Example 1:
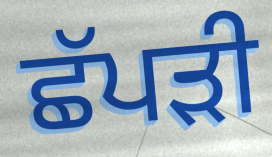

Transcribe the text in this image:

ਛੱਪੜੀ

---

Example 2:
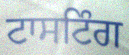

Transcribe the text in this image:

ਟਾਸਟਿੰਗ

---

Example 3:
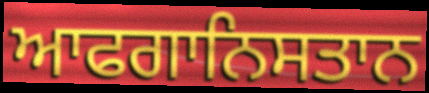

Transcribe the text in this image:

ਆਫਗਾਨਿਸਤਾਨ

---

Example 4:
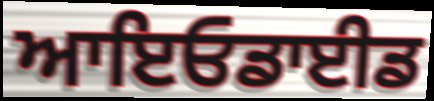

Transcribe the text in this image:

ਆਇਓਡਾਈਡ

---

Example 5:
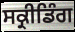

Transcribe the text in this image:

ਸਕ੍ਰੀਡਿੰਗ